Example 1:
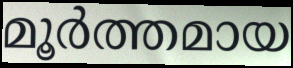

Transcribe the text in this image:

മൂർത്തമായ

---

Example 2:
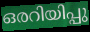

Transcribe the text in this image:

ഒരറിയിപ്പു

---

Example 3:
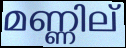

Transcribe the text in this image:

മണ്ണില്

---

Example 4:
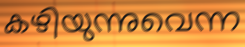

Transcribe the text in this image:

കഴിയുന്നുവെന്ന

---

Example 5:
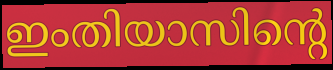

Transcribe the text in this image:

ഇംതിയാസിന്റെ